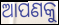
ଆପଣକୁ